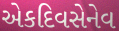
એકદિવસેનેવ